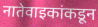
नातेवाइकांकडून